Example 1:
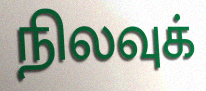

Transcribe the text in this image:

நிலவுக்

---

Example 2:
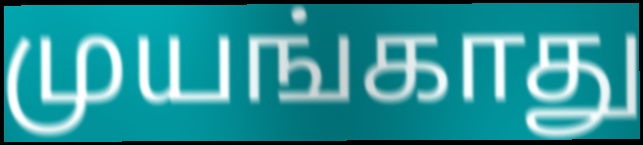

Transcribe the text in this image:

முயங்காது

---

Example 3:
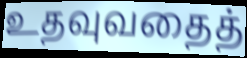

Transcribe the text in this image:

உதவுவதைத்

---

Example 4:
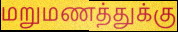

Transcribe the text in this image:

மறுமணத்துக்கு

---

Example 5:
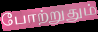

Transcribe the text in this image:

போற்றுதும்